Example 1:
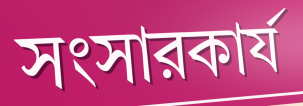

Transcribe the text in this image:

সংসারকার্য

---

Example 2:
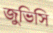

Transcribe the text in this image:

জুভিসি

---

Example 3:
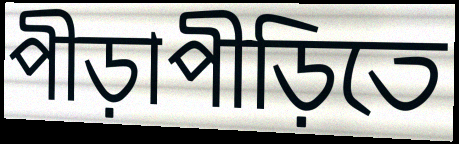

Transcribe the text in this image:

পীড়াপীড়িতে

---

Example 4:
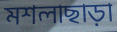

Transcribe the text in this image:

মশলাছাড়া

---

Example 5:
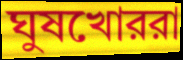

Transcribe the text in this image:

ঘুষখোররা